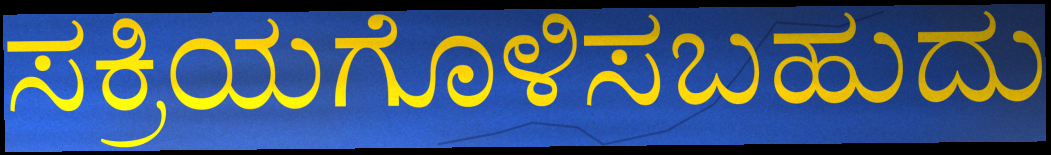
ಸಕ್ರಿಯಗೊಳಿಸಬಹುದು